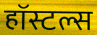
हॉस्टल्स